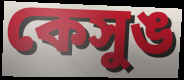
কেসুঙ